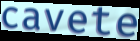
cavete